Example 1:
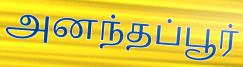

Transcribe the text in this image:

அனந்தப்பூர்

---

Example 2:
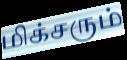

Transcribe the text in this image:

மிக்சரும்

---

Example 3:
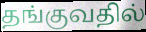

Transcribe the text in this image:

தங்குவதில்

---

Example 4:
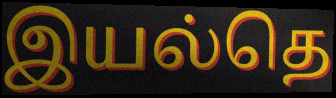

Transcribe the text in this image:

இயல்தெ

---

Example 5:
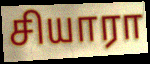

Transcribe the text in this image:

சியாரா